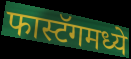
फास्टॅगमध्ये